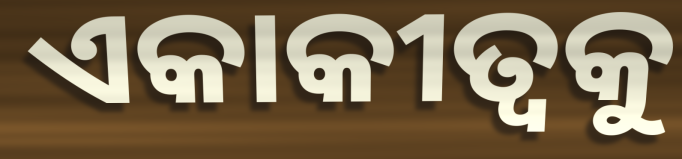
ଏକାକୀତ୍ଵକୁ